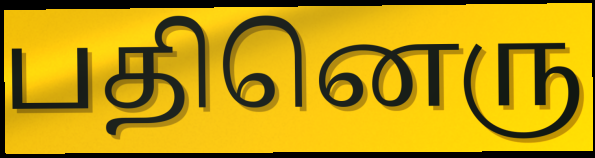
பதினெரு